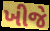
ખીજે